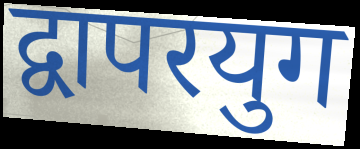
द्वापरयुग